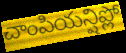
చాంపియన్షిప్లో